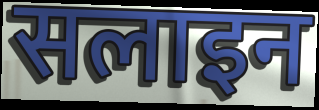
सलाइन